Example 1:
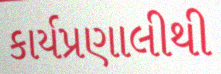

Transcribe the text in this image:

કાર્યપ્રણાલીથી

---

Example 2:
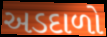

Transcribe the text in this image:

અડદાળો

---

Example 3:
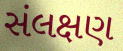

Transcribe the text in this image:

સંલક્ષણ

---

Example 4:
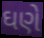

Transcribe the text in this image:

ઘણે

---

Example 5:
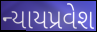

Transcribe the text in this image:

ન્યાયપ્રવેશ